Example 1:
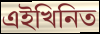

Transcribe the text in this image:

এইখিনিত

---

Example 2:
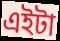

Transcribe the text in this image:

এইটা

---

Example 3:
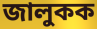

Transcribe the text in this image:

জালুকক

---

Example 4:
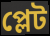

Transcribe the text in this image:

প্লেট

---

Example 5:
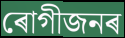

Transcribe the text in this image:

ৰোগীজনৰ